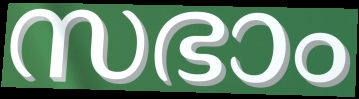
സഭാം